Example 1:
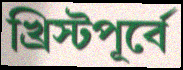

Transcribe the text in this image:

খ্রিস্টপূর্বে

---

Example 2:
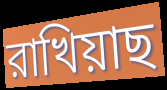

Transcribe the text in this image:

রাখিয়াছ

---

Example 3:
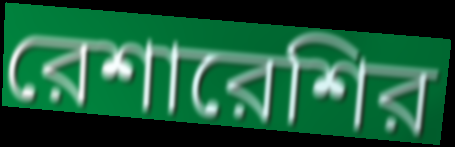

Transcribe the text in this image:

রেশারেশির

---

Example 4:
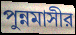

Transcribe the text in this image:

পুন্নমাসীর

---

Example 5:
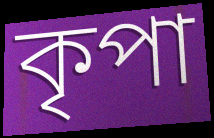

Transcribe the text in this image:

কৃপা